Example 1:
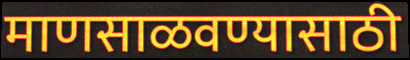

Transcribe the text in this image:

माणसाळवण्यासाठी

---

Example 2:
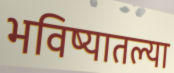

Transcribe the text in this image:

भविष्यातल्या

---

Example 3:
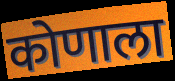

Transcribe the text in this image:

कोणाला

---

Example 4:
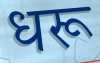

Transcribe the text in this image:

धरू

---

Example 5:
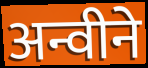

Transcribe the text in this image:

अन्वीने